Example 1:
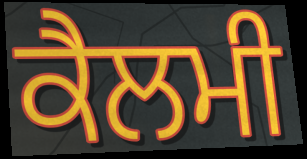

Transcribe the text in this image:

ਕੈਲਮੀ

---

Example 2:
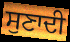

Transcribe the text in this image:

ਸੁਣਾਦੀ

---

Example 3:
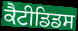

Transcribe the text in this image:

ਕੈਟੀਡਿਡਸ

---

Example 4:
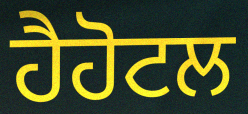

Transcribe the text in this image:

ਹੈਹੋਟਲ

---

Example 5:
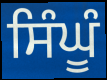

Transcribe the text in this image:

ਸਿੰਘੂੰ